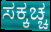
ಸಕ್ಕಚ್ಚ